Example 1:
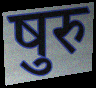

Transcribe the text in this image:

षुरु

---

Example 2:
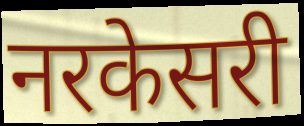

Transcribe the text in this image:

नरकेसरी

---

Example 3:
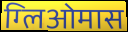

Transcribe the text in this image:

ग्लिओमास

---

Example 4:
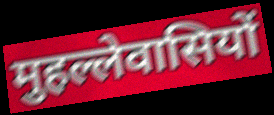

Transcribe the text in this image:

मुहल्लेवासियों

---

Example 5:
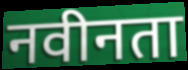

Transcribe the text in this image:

नवीनता